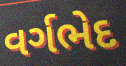
વર્ગભેદ